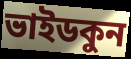
ভাইডকুন